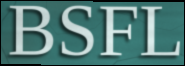
BSFL